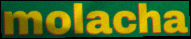
molacha